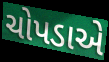
ચોપડાએ